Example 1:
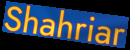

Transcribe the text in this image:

Shahriar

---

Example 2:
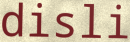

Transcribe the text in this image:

disli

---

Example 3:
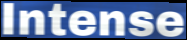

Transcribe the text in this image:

Intense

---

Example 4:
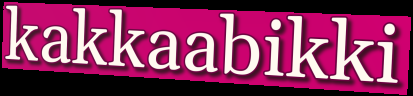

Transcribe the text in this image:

kakkaabikki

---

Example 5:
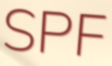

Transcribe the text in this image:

SPF